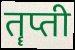
तॄप्ती